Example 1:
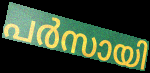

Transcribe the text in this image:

പർസായി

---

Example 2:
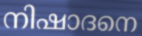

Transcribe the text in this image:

നിഷാദനെ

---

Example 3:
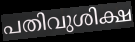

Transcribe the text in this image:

പതിവുശിക്ഷ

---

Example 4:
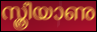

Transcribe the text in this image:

സ്ത്രീയാണു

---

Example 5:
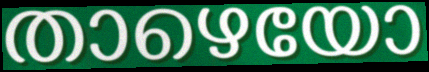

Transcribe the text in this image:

താഴെയോ